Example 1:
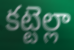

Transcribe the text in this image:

కట్టెల్లా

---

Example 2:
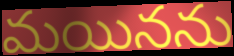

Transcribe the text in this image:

మయినను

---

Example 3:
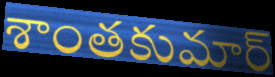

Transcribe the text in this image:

శాంతకుమార్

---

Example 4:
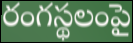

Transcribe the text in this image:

రంగస్థలంపై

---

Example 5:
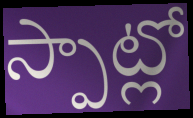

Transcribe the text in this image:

స్పాట్లో